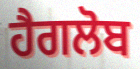
ਹੈਗਲੋਬ